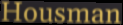
Housman